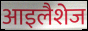
आइलैशेज